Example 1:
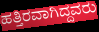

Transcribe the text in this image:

ಹತ್ತಿರವಾಗಿದ್ದವರು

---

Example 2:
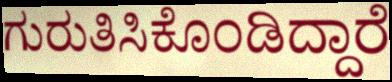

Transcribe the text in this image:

ಗುರುತಿಸಿಕೊಂಡಿದ್ದಾರೆ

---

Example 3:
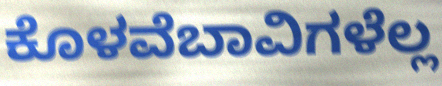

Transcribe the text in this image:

ಕೊಳವೆಬಾವಿಗಳೆಲ್ಲ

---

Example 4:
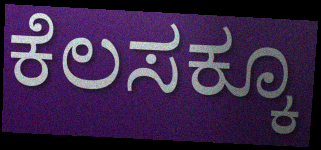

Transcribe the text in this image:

ಕೆಲಸಕ್ಕೂ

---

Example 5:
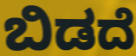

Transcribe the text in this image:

ಬಿಡದೆ